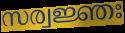
സര്വജ്ഞഃ